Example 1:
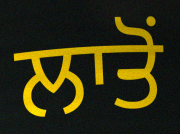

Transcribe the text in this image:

ਲਾਤੋਂ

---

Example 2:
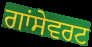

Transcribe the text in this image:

ਗਾਂਸੇਵਰਟ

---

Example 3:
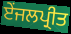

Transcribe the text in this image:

ਏਂਜਲਪ੍ਰੀਤ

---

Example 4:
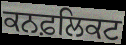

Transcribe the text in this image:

ਕਨਫ਼ਲਿਕਟ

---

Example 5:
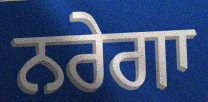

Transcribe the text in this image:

ਨਰੇਗਾ